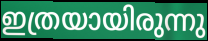
ഇത്രയായിരുന്നു